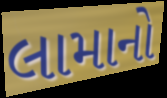
લામાનો